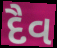
દૈવ